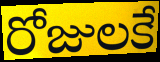
రోజులకే